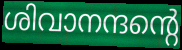
ശിവാനന്ദന്റെ